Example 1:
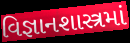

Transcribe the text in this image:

વિજ્ઞાનશાસ્ત્રમાં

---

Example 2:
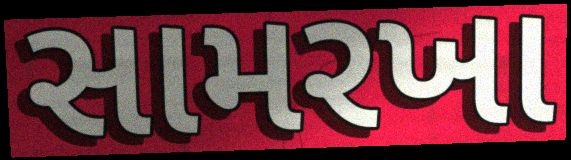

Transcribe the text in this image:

સામરખા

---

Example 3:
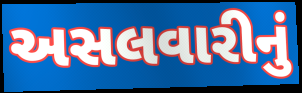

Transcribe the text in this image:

અસલવારીનું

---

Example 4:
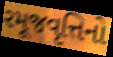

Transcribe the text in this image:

રમૂજવૃત્તિનો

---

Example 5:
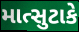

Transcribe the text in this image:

માત્સુટાકે